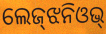
ଲେଜ୍‌ଝନିଓଭ୍